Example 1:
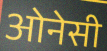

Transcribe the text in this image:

ओनेसी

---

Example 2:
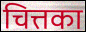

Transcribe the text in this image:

चित्तका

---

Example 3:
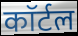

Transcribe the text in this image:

कॉर्टल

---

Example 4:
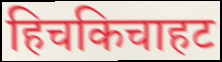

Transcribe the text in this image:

हिचकिचाहट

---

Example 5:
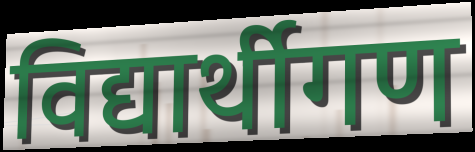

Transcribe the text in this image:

विद्यार्थीगण